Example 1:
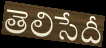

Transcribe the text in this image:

తెలిసేదీ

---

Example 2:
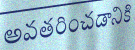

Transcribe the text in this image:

అవతరించడానికి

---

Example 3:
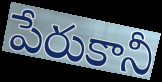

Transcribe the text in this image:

పేరుకానీ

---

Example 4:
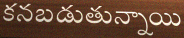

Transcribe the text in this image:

కనబడుతున్నాయి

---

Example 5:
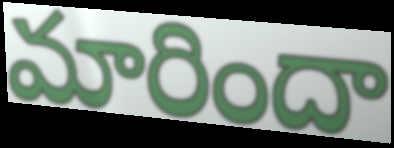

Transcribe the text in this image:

మారిందా